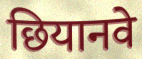
छियानवे